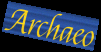
Archaeo